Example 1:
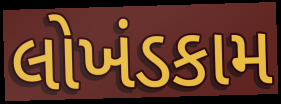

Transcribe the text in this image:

લોખંડકામ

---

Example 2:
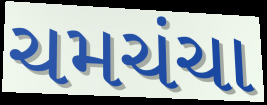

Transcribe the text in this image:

ચમચંચા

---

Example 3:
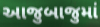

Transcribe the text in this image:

આજુબાજુમાં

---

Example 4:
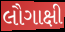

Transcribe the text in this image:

લૌગાક્ષી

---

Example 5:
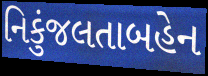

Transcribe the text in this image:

નિકુંજલતાબહેન